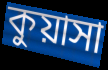
কুয়াসা